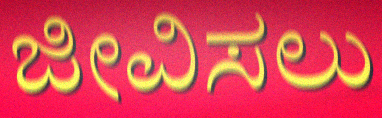
ಜೀವಿಸಲು